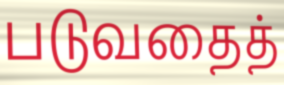
படுவதைத்